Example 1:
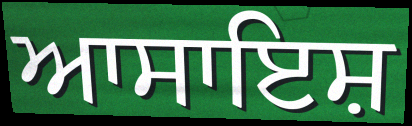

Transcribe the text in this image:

ਆਸਾਇਸ਼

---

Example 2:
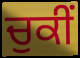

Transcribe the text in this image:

ਚੁਕੀਂ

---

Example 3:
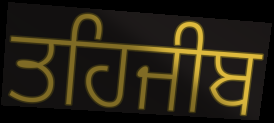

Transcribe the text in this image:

ਤਹਿਜੀਬ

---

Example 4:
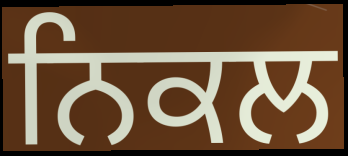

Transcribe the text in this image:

ਨਿਕਲ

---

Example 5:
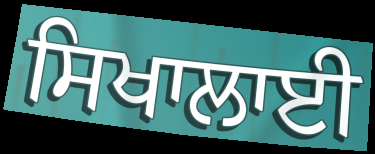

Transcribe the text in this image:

ਸਿਖਾਲਾਈ